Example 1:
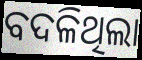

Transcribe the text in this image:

ବଦଳିଥିଲା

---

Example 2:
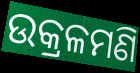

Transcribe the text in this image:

ଉକ୍ରଳମଣି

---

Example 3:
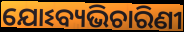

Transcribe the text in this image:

ଯୋଽବ୍ୟଭିଚାରିଣୀ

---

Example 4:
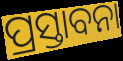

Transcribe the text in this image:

ପ୍ରସ୍ତାବନା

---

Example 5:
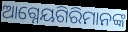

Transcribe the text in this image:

ଆଗ୍ନେୟଗିରିମାନଙ୍କ